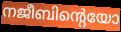
നജീബിന്റെയോ